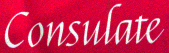
Consulate